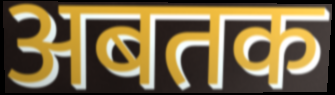
अबतक